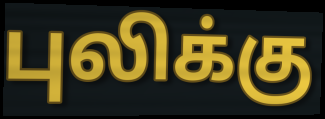
புலிக்கு